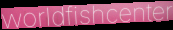
worldfishcenter